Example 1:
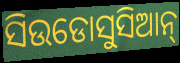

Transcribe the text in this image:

ସିଉଡୋସୁସିଆନ୍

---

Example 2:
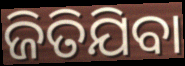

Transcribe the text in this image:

ଜିତିଯିବା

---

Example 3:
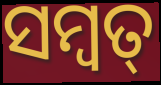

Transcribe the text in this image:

ସମ୍ବତ୍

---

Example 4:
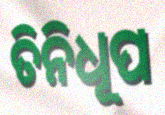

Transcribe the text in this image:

ତିନିଧୂପ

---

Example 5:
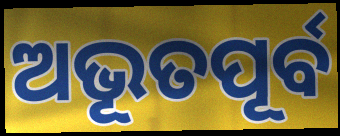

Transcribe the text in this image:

ଅଭୂତପୂର୍ବ